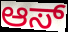
ಆಸ್